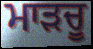
ਮਾੜਚੂ